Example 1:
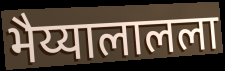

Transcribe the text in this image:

भैय्यालालला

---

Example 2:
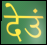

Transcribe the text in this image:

देउं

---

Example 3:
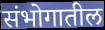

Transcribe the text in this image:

संभोगातील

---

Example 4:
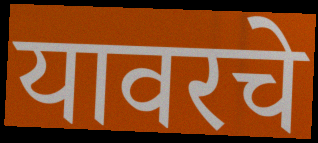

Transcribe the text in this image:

यावरचे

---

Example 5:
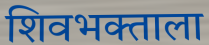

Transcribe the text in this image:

शिवभक्ताला